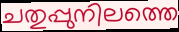
ചതുപ്പുനിലത്തെ